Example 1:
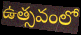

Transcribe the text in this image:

ఉత్సవంలో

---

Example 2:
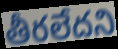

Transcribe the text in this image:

తీరలేదని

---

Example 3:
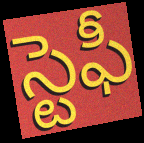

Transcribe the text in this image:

స్టెఫీ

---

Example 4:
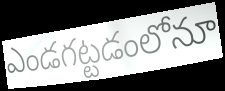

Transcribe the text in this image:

ఎండగట్టడంలోనూ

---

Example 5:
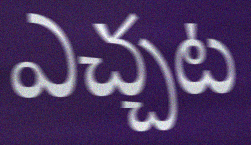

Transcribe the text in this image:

ఎచ్చట